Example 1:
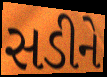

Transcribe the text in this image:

સડીને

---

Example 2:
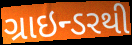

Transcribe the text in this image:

ગ્રાઇન્ડરથી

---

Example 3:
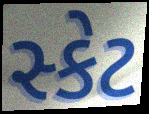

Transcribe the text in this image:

સ્કેટ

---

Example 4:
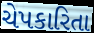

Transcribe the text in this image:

ચેપકારિતા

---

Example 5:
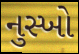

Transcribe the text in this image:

નુસ્ખો